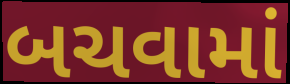
બચવામાં